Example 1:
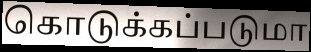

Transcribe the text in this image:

கொடுக்கப்படுமா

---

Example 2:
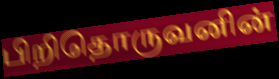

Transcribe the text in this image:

பிறிதொருவனின்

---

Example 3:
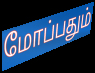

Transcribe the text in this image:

மோப்பதும்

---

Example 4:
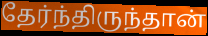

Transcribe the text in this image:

தேர்ந்திருந்தான்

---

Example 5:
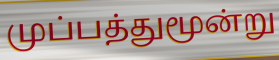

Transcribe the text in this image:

முப்பத்துமூன்று